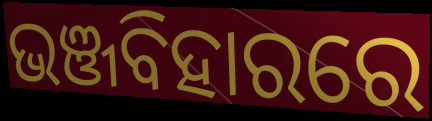
ଭଞ୍ଜବିହାରରେ